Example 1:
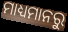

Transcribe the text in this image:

ମାଧ୍ୟମାନରୁ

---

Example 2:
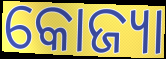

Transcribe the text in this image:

କୋଜ୍ୟା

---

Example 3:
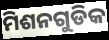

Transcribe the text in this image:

ମିଶନଗୁଡିକ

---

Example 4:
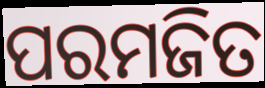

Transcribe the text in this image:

ପରମଜିତ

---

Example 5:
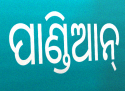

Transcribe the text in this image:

ପାଣ୍ଡିଆନ୍